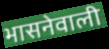
भासनेवाली